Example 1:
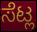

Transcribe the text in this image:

ಸೆಟ್ಲ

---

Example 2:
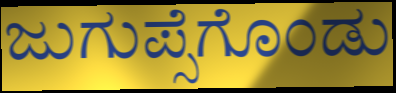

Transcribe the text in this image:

ಜುಗುಪ್ಸೆಗೊಂಡು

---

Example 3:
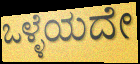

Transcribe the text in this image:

ಒಳ್ಳೆಯದೇ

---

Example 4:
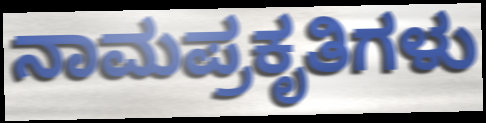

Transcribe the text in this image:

ನಾಮಪ್ರಕೃತಿಗಳು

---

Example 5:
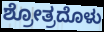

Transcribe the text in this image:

ಶ್ರೋತ್ರದೊಳು